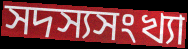
সদস্যসংখ্যা